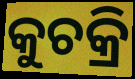
କୁଚକ୍ରି